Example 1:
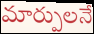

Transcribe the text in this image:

మార్పులనే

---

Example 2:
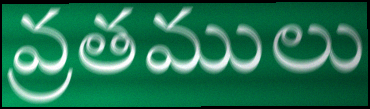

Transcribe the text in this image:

వ్రతములు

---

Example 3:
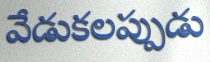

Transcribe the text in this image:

వేడుకలప్పుడు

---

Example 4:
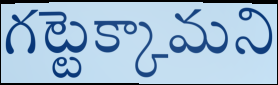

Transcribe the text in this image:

గట్టెక్కామని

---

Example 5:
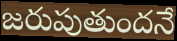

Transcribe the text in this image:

జరుపుతుందనే